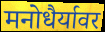
मनोधैर्यावर